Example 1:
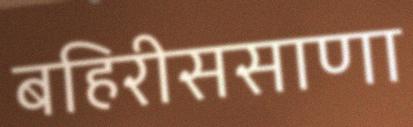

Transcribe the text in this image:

बहिरीससाणा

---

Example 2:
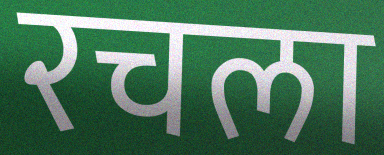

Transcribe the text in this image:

रचला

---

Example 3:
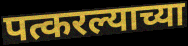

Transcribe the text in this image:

पत्करल्याच्या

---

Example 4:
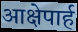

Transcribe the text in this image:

आक्षेपार्ह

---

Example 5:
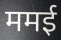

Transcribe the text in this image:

ममई